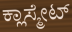
ಕ್ಲಾಸ್ಮೇಟ್